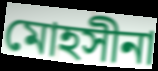
মোহসীনা